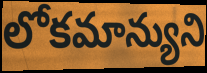
లోకమాన్యుని